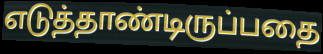
எடுத்தாண்டிருப்பதை